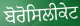
ਬੋਰੋਸਿਲੀਕੇਟ